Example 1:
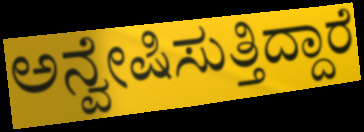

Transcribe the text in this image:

ಅನ್ವೇಷಿಸುತ್ತಿದ್ದಾರೆ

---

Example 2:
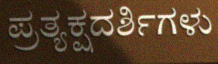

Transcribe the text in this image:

ಪ್ರತ್ಯಕ್ಷದರ್ಶಿಗಳು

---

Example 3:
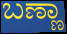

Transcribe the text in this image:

ಬಣ್ಣಾ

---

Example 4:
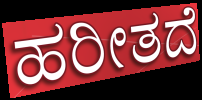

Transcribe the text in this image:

ಹರೀತದೆ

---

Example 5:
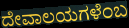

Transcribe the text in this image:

ದೇವಾಲಯಗಳೆಂಬ